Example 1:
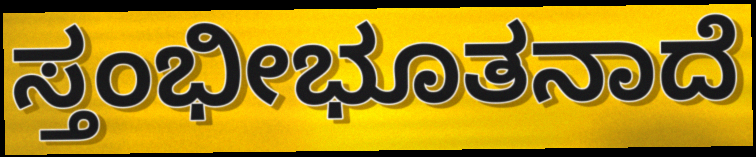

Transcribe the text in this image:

ಸ್ತಂಭೀಭೂತನಾದೆ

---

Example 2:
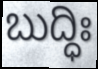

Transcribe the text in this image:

ಬುದ್ಧಿಃ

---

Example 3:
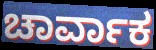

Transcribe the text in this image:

ಚಾರ್ವಾಕ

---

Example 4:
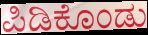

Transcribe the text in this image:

ಪಿಡಿಕೊಂಡು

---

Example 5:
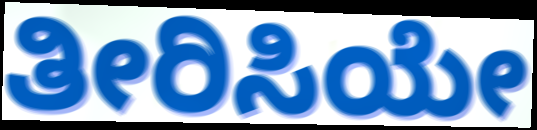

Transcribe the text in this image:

ತೀರಿಸಿಯೇ